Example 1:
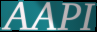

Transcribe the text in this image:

AAPI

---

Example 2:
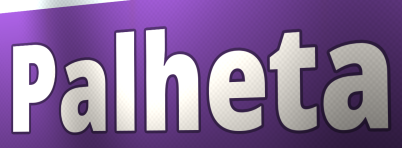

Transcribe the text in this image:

Palheta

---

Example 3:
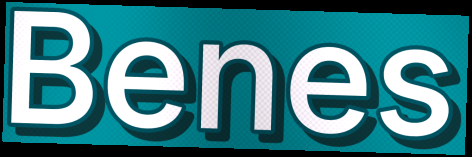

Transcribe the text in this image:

Benes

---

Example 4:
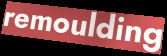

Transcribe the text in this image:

remoulding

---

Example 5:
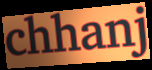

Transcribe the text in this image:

chhanj